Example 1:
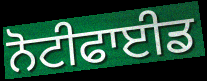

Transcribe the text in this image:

ਨੋਟੀਫਾਈਡ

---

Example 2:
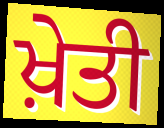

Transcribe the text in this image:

ਖ਼ੇਤੀ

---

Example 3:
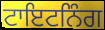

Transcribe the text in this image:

ਟਾਇਟਨਿੰਗ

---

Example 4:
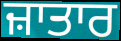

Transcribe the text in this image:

ਜ਼ਾਤਾਰ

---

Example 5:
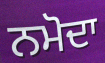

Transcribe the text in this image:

ਨਮੋਦਾ